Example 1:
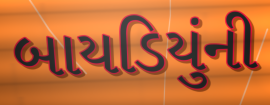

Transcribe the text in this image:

બાયડિયુંની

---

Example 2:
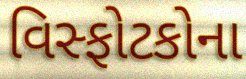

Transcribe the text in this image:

વિસ્ફોટકોના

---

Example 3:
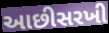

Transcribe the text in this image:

આછીસરખી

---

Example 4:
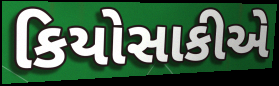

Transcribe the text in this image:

કિયોસાકીએ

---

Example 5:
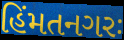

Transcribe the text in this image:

હિંમતનગરઃ